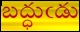
బద్ధుఁడు